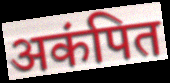
अकंपित